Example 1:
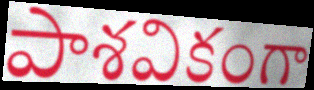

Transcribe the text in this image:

పాశవికంగా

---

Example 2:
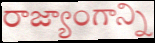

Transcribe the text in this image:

రాజ్యాంగాన్ని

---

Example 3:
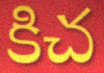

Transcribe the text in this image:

కిచ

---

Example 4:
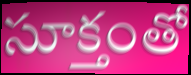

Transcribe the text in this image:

సూక్తంతో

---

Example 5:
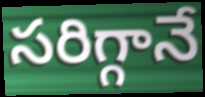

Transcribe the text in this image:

సరిగ్గానే